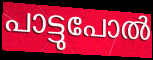
പാട്ടുപോൽ